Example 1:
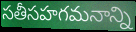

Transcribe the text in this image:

సతీసహగమనాన్ని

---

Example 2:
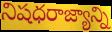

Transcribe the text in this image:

నిషధరాజ్యాన్ని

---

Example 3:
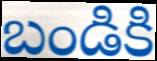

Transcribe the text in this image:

బండికి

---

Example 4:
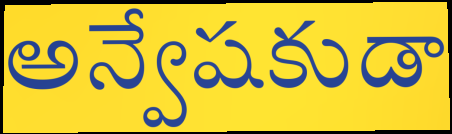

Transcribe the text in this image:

అన్వేషకుడా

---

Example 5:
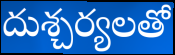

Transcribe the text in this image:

దుశ్చర్యలతో